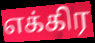
எக்கிர